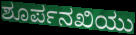
ಶೂರ್ಪನಖಿಯು